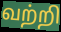
வற்றி